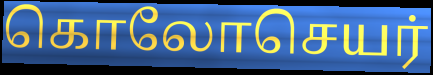
கொலோசெயர்